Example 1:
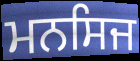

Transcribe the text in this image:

ਮਨਸਿਜ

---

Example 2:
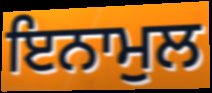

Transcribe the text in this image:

ਇਨਾਮੁਲ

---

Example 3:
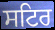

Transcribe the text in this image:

ਸਟਿਰ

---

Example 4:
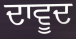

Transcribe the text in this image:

ਦਾਵੂਦ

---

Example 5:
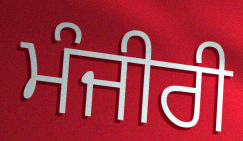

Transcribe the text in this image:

ਮੰਜੀਰੀ